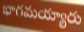
భాగమయ్యారు